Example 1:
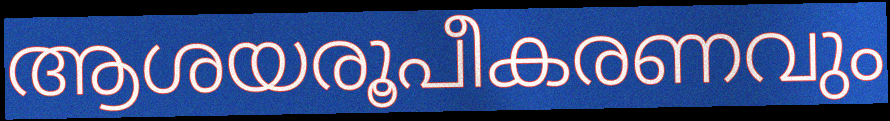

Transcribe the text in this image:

ആശയരൂപീകരണവും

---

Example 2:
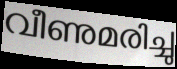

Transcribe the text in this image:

വീണുമരിച്ചു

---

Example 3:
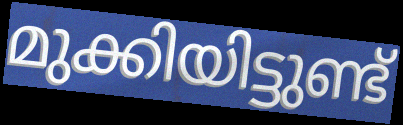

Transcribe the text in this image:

മുക്കിയിട്ടുണ്ട്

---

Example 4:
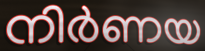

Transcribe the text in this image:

നിർണയ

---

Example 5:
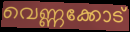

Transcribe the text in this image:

വെണ്ണക്കോട്